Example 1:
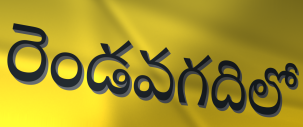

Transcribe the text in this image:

రెండవగదిలో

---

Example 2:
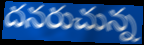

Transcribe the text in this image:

దనరుచున్న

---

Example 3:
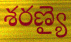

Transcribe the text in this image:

శరణ్యై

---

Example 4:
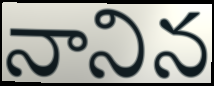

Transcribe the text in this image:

నానిన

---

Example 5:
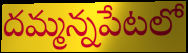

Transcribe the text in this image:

దమ్మన్నపేటలో